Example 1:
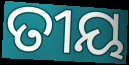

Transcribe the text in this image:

ତୀୟ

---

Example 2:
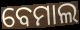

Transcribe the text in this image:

ବେମାଲ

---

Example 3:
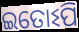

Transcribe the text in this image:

ଇତୋଽପି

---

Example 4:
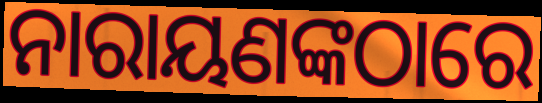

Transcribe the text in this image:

ନାରାୟଣଙ୍କଠାରେ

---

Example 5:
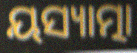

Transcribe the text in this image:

ୟସ୍ୟାତ୍ମା